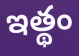
ఇత్థం